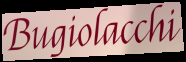
Bugiolacchi